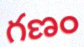
గణం